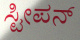
ಸ್ಟೀಪನ್